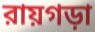
রায়গড়া